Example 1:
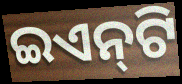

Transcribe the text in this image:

ଇଏନ୍‌ଟି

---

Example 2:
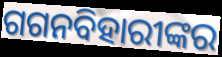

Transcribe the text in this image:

ଗଗନବିହାରୀଙ୍କର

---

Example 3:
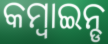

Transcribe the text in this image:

କମ୍ବାଇନ୍ଡ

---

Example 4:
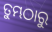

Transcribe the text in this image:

ତୁମ୍ଭଠାରୁ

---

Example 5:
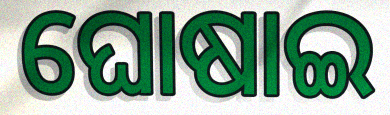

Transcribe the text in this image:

ଘୋଷାଇ